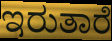
ಇರುತಾರೆ